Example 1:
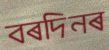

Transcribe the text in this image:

বৰদিনৰ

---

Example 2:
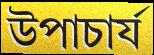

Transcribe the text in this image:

উপাচাৰ্য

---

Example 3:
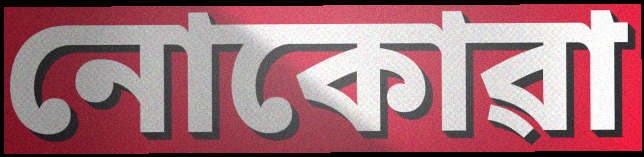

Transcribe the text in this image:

নোকোৱা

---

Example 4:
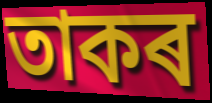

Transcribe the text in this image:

তাকৰ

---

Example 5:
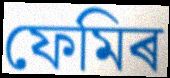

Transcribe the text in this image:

ফেমিৰ